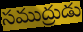
సముద్రుడు